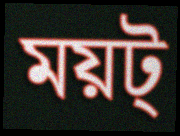
ময়ট্